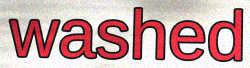
washed